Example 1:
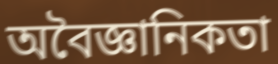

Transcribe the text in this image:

অবৈজ্ঞানিকতা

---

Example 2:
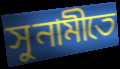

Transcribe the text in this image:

সুনামীতে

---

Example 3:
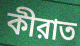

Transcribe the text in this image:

কীরাত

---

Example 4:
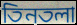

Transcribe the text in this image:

তিনতলা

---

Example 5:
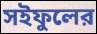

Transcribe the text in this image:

সইফুলের